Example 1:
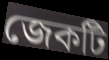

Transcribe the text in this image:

জেকটি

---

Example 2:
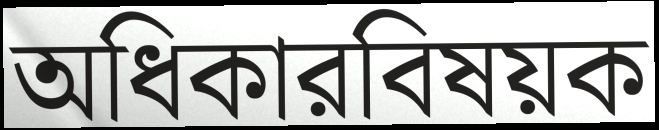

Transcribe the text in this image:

অধিকারবিষয়ক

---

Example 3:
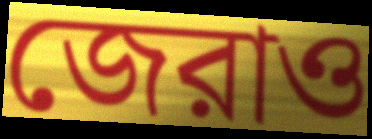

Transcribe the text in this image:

জেরাও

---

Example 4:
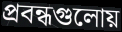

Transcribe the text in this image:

প্রবন্ধগুলোয়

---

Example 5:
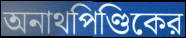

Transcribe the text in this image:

অনাথপিণ্ডিকের